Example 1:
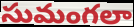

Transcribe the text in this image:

సుమంగలా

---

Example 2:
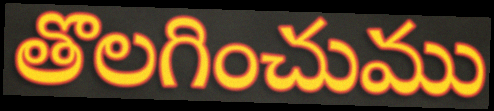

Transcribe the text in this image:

తొలగించుము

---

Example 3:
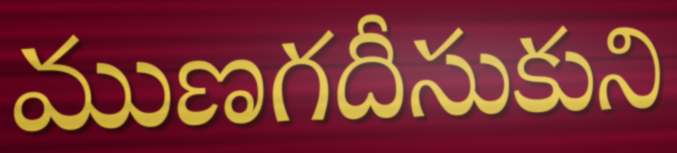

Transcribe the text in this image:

ముణగదీసుకుని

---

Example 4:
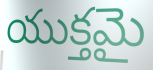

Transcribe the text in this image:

యుక్తమై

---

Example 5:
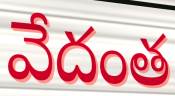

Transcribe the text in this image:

వేదంత